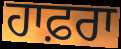
ਹਾਫ਼ਰਾ